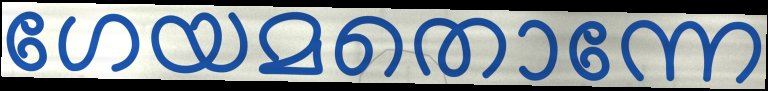
ഗേയമതൊന്നേ